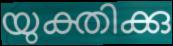
യുക്തിക്കു